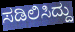
ಸಡಿಲಿಸಿದ್ದು